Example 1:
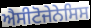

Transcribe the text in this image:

ਐਸੀਟੋਜੇਨੇਸਿਸ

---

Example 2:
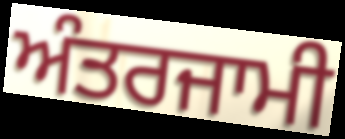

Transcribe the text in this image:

ਅੰਤਰਜਾਮੀ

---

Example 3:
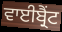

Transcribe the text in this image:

ਵਾਈਬ੍ਰੈਂਟ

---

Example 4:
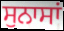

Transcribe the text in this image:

ਸੁਨਾਸਾਂ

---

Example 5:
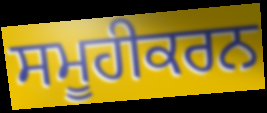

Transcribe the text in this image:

ਸਮੂਹੀਕਰਨ